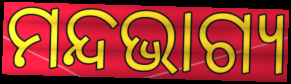
ମନ୍ଦଭାଗ୍ୟ